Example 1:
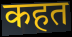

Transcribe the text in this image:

कहत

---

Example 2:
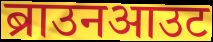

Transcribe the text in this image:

ब्राउनआउट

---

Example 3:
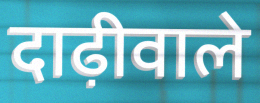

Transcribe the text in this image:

दाढ़ीवाले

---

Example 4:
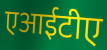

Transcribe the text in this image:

एआईटीए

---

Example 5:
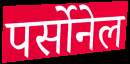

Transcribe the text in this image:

पर्सोनेल